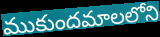
ముకుందమాలలోని